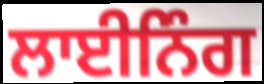
ਲਾਈਨਿੰਗ